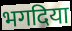
भगदिया